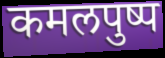
कमलपुष्प